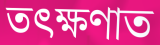
তৎক্ষণাত